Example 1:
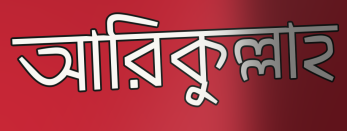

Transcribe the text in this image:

আরিকুল্লাহ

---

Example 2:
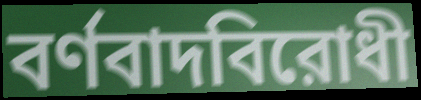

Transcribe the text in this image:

বর্ণবাদবিরোধী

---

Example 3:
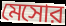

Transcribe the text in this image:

মেসোর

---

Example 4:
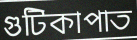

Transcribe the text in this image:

গুটিকাপাত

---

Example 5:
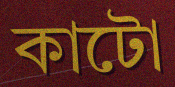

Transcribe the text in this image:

কাটো